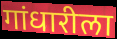
गांधारीला